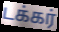
டக்கர்